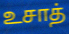
உசாத்